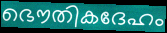
ഭൌതികദേഹം